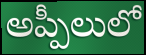
అప్పీలులో